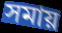
সমায়